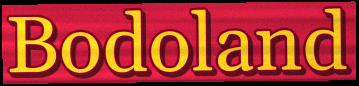
Bodoland